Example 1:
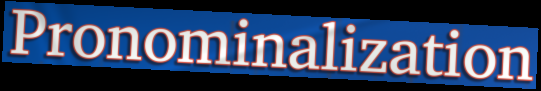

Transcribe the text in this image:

Pronominalization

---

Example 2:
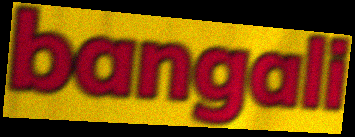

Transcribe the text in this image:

bangali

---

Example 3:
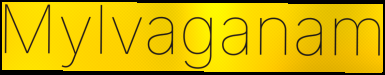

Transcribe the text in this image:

Mylvaganam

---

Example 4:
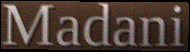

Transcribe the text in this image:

Madani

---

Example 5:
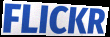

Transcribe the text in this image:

FLICKR